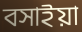
বসাইয়া